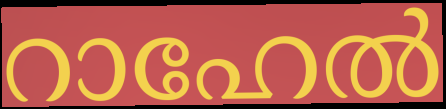
റാഹേൽ